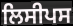
ਲਿਸੀਪਸ